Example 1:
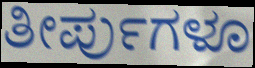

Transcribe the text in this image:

ತೀರ್ಪುಗಳೂ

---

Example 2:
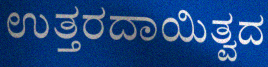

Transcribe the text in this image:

ಉತ್ತರದಾಯಿತ್ವದ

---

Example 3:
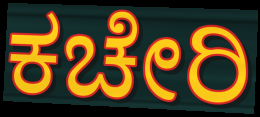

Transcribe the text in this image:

ಕಚೇರಿ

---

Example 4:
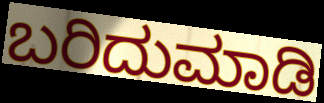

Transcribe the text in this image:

ಬರಿದುಮಾಡಿ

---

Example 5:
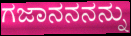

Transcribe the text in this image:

ಗಜಾನನನನ್ನು